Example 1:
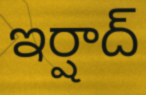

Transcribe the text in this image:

ఇర్షాద్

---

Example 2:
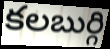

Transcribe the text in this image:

కలబుర్గి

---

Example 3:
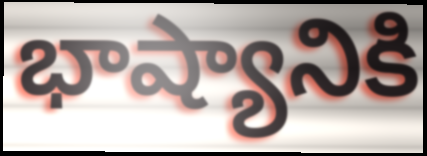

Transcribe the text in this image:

భాష్యానికి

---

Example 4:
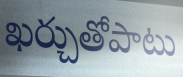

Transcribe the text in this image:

ఖర్చుతోపాటు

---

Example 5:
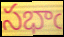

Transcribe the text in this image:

సభాఁ